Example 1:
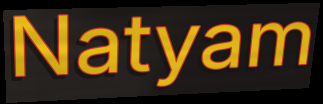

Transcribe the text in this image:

Natyam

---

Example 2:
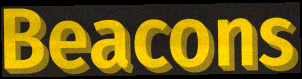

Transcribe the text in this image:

Beacons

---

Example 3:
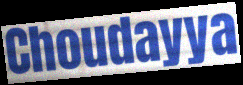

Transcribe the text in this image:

Choudayya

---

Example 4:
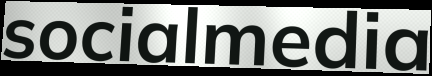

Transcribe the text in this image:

socialmedia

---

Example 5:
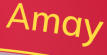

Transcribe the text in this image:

Amay